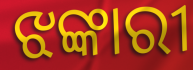
ଝଙ୍କାରୀ